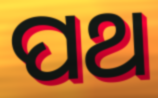
ପଥ